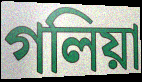
গলিয়া